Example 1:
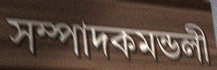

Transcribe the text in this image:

সম্পাদকমন্ডলী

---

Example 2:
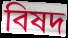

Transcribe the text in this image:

বিষদ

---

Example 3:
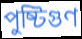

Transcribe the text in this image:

পুষ্টিগুণ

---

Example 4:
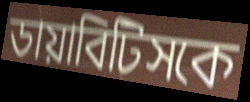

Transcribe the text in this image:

ডায়াবিটিসকে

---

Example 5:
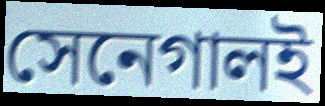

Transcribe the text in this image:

সেনেগালই